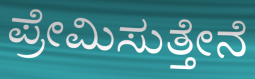
ಪ್ರೇಮಿಸುತ್ತೇನೆ